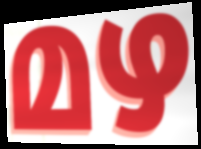
മഴ